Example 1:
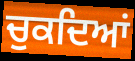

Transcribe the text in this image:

ਚੁਕਦਿਆਂ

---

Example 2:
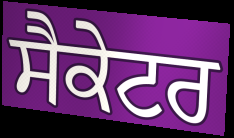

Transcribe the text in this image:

ਸੈਕੇਟਰ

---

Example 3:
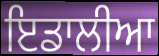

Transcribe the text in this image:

ਇਡਾਲੀਆ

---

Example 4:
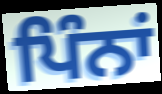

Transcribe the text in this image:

ਪਿੰਨਾਂ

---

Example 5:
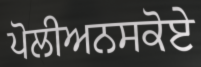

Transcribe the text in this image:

ਪੋਲੀਅਨਸਕੋਏ